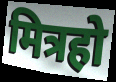
मित्रहो